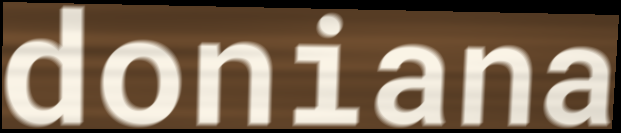
doniana